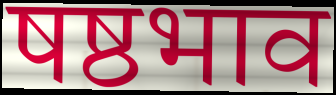
षष्ठभाव